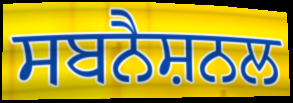
ਸਬਨੈਸ਼ਨਲ